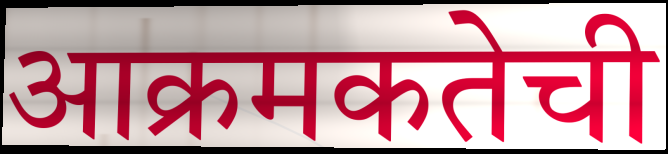
आक्रमकतेची